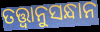
ତତ୍ତ୍ବାନୁସନ୍ଧାନ